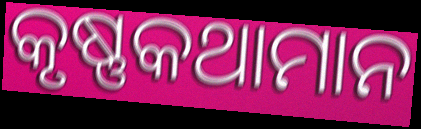
କୃଷ୍ଣକଥାମାନ